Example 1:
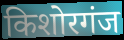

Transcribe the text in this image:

किशोरगंज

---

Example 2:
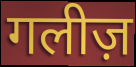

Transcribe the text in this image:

गलीज़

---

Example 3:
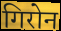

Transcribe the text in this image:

गिरोन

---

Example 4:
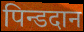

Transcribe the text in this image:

पिन्डदान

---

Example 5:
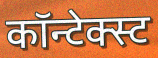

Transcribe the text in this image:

कॉन्टेक्स्ट